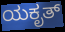
ಯಕೃತ್